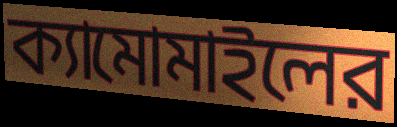
ক্যামোমাইলের